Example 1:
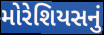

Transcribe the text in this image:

મોરેશિયસનું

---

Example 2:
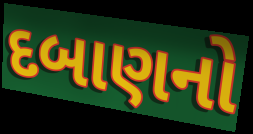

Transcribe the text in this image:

દબાણનો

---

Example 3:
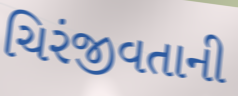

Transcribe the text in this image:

ચિરંજીવતાની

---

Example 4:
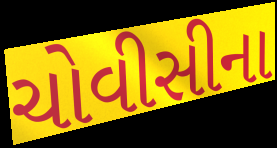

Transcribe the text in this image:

ચોવીસીના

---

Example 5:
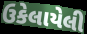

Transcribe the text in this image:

ઉકેલાયેલી